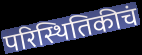
परिस्थितिकीचं